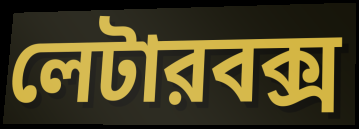
লেটারবক্স